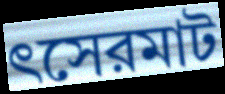
ৎসেরমাট